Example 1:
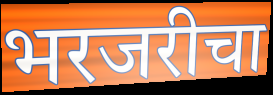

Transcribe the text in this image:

भरजरीचा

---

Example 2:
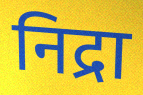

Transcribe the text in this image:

निद्रा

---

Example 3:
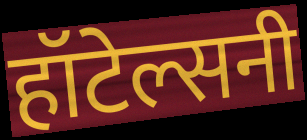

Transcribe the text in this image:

हॉटेल्सनी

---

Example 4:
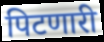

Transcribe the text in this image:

पिटणारी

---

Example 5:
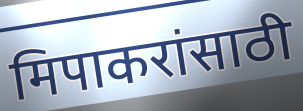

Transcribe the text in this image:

मिपाकरांसाठी